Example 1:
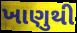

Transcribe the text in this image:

ખાણુથી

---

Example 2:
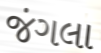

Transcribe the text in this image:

જંગલા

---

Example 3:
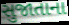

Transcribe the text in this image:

સુજાતાના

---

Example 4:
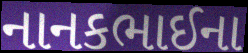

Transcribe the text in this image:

નાનકભાઈના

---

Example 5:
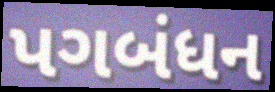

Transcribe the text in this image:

પગબંધન